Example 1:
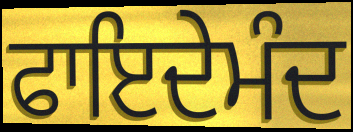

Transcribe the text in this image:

ਫਾਇਦੇਮੰਦ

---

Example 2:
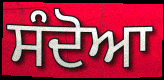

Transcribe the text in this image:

ਸੰਦੋਆ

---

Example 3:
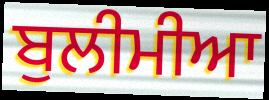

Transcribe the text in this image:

ਬੁਲੀਮੀਆ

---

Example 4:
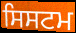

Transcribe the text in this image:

ਸਿਸਟਮ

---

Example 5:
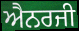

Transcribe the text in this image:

ਐਨਰਜੀ